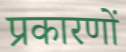
प्रकारणों